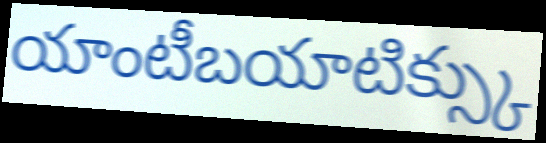
యాంటీబయాటిక్స్కు